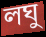
লঘু